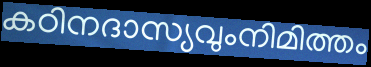
കഠിനദാസ്യവുംനിമിത്തം